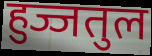
हुज्जतुल